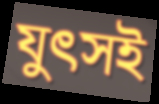
যুৎসই